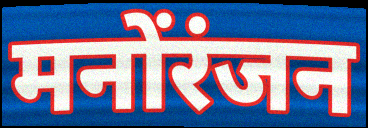
मनोंरंजन